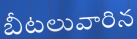
బీటలువారిన